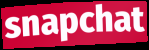
snapchat